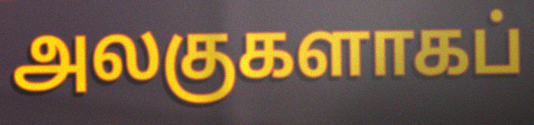
அலகுகளாகப்